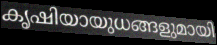
കൃഷിയായുധങ്ങളുമായി